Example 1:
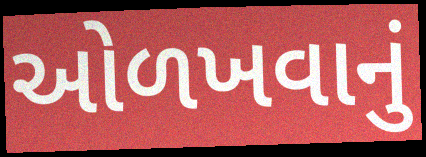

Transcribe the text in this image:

ઓળખવાનું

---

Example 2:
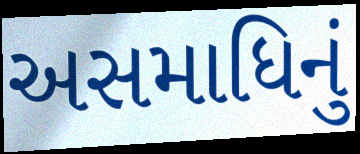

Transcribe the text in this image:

અસમાધિનું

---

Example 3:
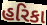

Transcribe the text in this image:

હરિકા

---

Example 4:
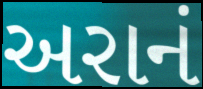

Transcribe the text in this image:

અરાનં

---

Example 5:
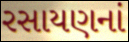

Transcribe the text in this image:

રસાયણનાં